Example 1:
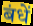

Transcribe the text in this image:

बंधें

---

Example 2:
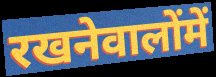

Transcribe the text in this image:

रखनेवालोंमें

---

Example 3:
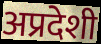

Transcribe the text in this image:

अप्रदेशी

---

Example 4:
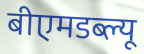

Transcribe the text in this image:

बीएमडब्ल्यू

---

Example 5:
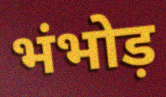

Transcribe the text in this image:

भंभोड़